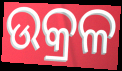
ଉକ୍ରଳ